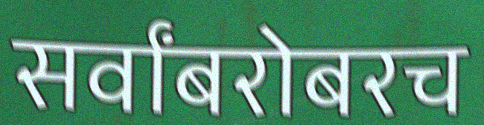
सर्वांबरोबरच